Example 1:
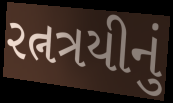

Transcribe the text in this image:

રત્નત્રયીનું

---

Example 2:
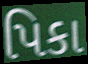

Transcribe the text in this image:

પિકા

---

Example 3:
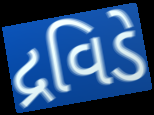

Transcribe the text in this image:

દ્રવિડે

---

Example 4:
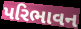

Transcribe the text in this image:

પરિભાવન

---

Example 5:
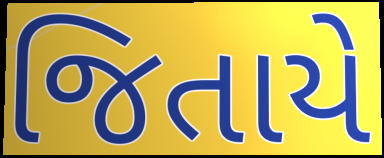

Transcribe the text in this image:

જિતાયે